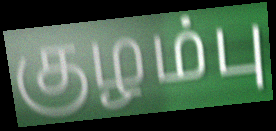
குழம்பு